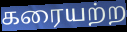
கரையற்ற